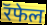
रॅफेल